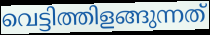
വെട്ടിത്തിളങ്ങുന്നത്